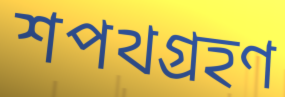
শপথগ্রহণ